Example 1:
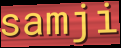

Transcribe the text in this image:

samji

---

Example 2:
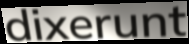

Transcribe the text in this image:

dixerunt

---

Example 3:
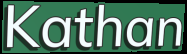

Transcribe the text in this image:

Kathan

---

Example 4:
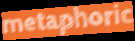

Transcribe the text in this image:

metaphoric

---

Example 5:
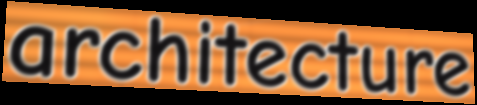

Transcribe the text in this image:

architecture